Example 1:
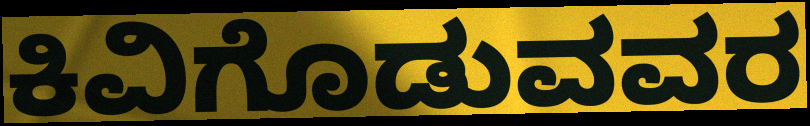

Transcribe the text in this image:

ಕಿವಿಗೊಡುವವರ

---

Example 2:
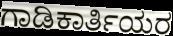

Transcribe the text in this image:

ಗಾಡಿಕಾರ್ತಿಯರ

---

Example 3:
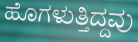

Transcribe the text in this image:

ಹೊಗಳುತ್ತಿದ್ದವು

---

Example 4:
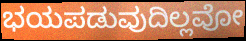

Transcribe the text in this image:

ಭಯಪಡುವುದಿಲ್ಲವೋ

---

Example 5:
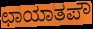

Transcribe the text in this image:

ಛಾಯಾತಪೌ